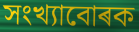
সংখ্যাবোৰক